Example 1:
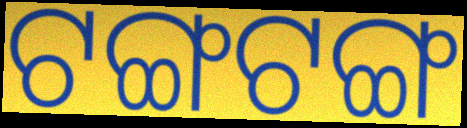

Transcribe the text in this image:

ଟଙ୍ଗଟଙ୍ଗ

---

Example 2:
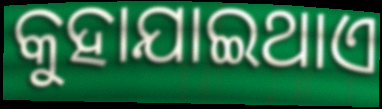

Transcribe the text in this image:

କୁହାଯାଇଥାଏ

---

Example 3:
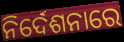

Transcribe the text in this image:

ନିର୍ଦେଶନାରେ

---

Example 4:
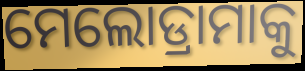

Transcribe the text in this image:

ମେଲୋଡ୍ରାମାକୁ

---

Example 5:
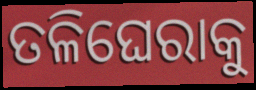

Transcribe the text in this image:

ତଳିଘେରାକୁ